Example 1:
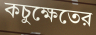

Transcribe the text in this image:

কচুক্ষেতের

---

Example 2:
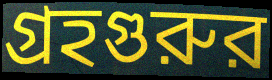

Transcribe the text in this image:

গ্রহগুরুর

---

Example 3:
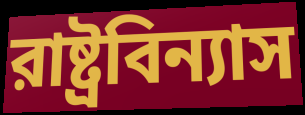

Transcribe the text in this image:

রাষ্ট্রবিন্যাস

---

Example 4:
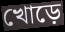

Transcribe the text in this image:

খোড়ে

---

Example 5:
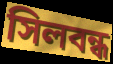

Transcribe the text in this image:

সিলবন্ধ